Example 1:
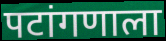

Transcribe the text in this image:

पटांगणाला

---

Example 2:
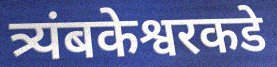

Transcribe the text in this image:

त्र्यंबकेश्वरकडे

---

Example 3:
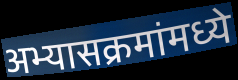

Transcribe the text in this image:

अभ्यासक्रमांमध्ये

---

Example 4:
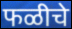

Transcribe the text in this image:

फळीचे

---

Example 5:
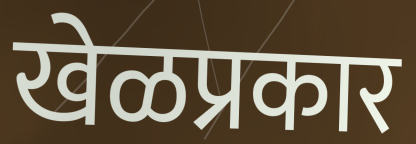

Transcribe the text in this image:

खेळप्रकार